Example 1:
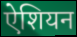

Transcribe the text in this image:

ऐशियन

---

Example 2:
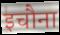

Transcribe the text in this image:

इचौना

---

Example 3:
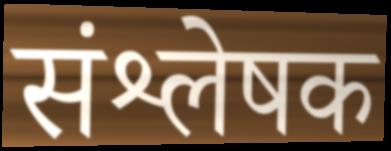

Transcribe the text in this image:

संश्लेषक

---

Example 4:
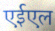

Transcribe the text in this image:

एईएल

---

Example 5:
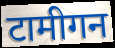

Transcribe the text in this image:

टामीगन